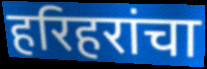
हरिहरांचा